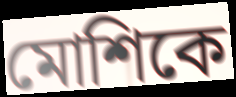
মোশিকে